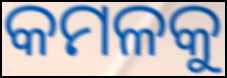
କମଳକୁ